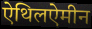
ऐथिलऐमीन